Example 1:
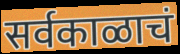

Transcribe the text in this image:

सर्वकाळाचं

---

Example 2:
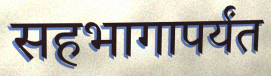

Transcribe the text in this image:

सहभागापर्यंत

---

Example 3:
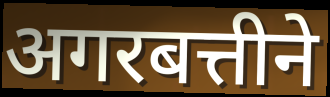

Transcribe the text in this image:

अगरबत्तीने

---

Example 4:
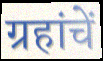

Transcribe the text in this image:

ग्रहांचें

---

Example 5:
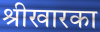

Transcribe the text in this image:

श्रीखारका